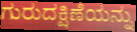
ಗುರುದಕ್ಷಿಣೆಯನ್ನು